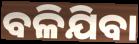
ବଳିଯିବା